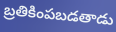
బ్రతికింపబడతాడు